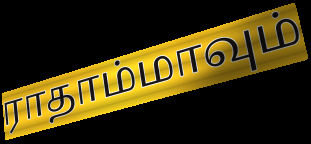
ராதாம்மாவும்